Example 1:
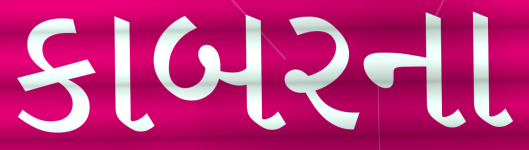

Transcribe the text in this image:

કાબરના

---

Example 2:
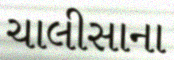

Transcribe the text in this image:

ચાલીસાના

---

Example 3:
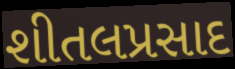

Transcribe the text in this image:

શીતલપ્રસાદ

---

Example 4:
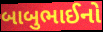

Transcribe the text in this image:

બાબુભાઈનો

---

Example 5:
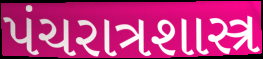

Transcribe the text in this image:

પંચરાત્રશાસ્ત્ર